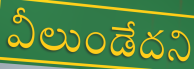
వీలుండేదని